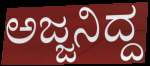
ಅಜ್ಜನಿದ್ದ